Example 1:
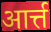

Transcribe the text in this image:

आर्त्त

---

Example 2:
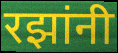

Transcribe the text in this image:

रझांनी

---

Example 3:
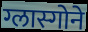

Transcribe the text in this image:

ग्लास्गोने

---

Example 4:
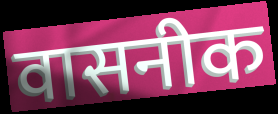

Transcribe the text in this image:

वासनीक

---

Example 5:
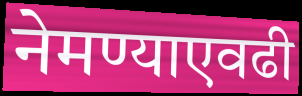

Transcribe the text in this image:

नेमण्याएवढी